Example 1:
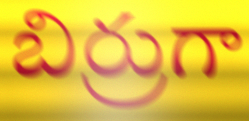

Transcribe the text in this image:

బిర్రుగా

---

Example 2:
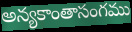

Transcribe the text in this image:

అన్యకాంతాసంగము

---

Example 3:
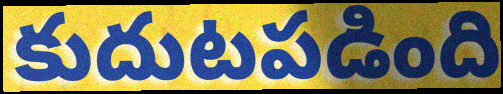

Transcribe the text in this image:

కుదుటపడింది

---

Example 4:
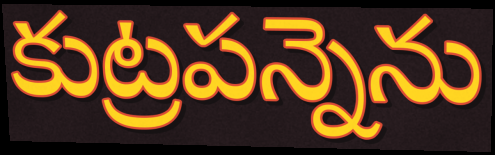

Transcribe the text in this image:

కుట్రపన్నెను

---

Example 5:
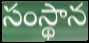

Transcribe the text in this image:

సంస్థాన